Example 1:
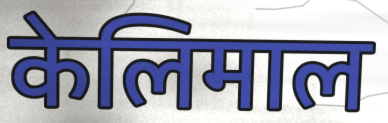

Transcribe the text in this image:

केलिमाल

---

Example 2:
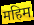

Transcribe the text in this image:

महिम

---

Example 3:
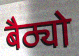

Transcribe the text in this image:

बैठ्यो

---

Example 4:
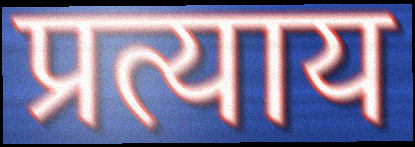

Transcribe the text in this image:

प्रत्याय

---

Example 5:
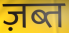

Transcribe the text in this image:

ज़ब्त